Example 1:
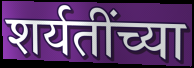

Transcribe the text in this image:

शर्यतींच्या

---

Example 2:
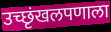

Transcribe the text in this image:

उच्छृंखलपणाला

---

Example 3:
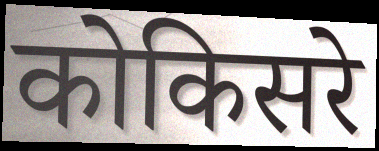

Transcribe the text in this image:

कोकिसरे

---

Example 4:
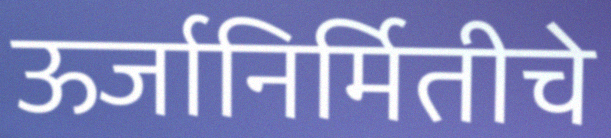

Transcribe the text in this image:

ऊर्जानिर्मितीचे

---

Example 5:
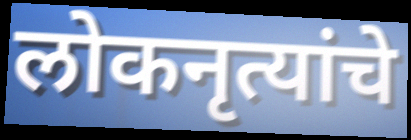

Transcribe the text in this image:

लोकनृत्यांचे